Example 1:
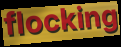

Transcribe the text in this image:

flocking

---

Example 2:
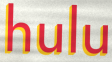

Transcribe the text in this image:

hulu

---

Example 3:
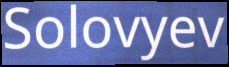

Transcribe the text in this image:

Solovyev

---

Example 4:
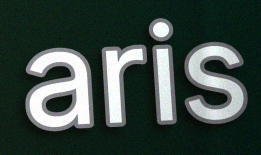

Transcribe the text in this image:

aris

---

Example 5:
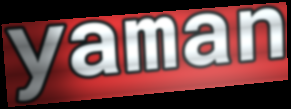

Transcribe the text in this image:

yaman